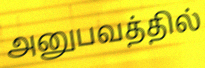
அனுபவத்தில்